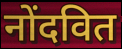
नोंदवित